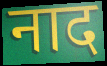
नाद